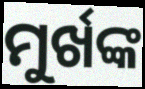
ମୁର୍ଖଙ୍କ